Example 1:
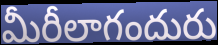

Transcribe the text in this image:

మీరీలాగందురు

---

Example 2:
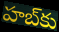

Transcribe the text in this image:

హబ్‌కు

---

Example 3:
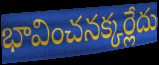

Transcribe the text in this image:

భావించనక్కర్లేదు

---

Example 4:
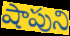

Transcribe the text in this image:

షాపుని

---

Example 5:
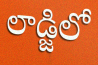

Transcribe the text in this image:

లాడ్జిలో